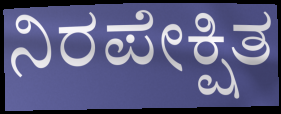
ನಿರಪೇಕ್ಷಿತ